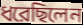
ধরেছিলেন